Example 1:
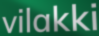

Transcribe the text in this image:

vilakki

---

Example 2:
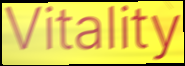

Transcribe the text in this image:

Vitality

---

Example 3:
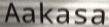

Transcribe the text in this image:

Aakasa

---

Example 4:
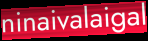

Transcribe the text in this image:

ninaivalaigal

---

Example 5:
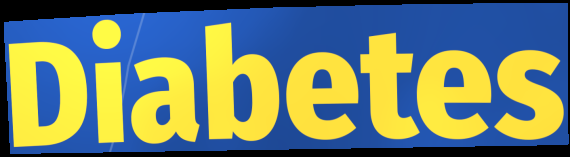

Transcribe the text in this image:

Diabetes